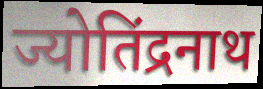
ज्योतिंद्रनाथ